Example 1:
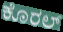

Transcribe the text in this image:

ಕೊರಲ್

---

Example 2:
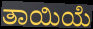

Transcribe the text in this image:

ತಾಯಿಯೆ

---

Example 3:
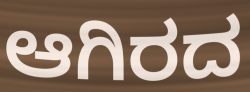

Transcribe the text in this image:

ಆಗಿರದ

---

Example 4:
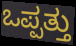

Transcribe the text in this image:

ಒಪ್ಪತ್ತು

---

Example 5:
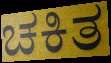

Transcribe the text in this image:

ಚಕಿತ